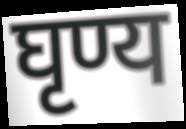
घृण्य